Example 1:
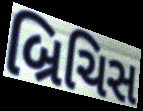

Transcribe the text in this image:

બ્રિચિસ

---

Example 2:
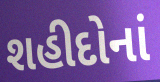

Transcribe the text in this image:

શહીદોનાં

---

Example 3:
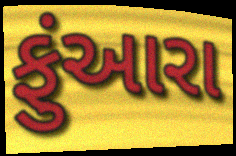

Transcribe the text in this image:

ફુંઆરા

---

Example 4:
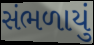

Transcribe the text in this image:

સંભળાયું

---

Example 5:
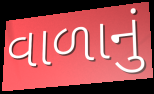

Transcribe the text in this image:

વાળાનું